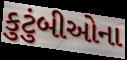
કુટુંબીઓના